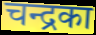
चन्द्रका